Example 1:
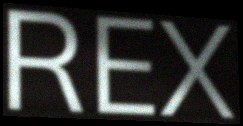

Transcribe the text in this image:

REX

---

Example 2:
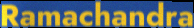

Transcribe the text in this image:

Ramachandra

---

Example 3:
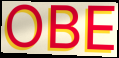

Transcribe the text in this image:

OBE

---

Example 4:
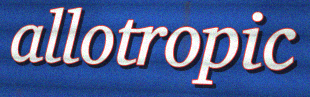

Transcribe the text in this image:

allotropic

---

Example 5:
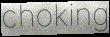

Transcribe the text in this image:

choking